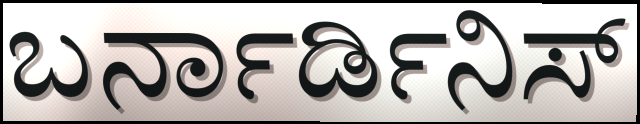
ಬರ್ನಾರ್ಡಿನಿಸ್